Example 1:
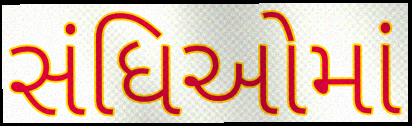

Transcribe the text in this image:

સંધિઓમાં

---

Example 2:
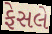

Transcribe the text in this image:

ફેસલે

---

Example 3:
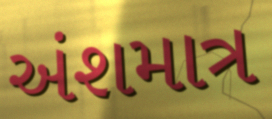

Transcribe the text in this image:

અંશમાત્ર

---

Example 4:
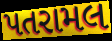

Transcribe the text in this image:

પતરામલ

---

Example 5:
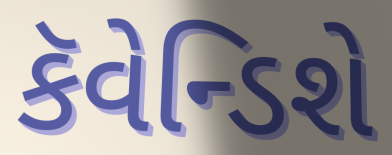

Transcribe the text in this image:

કૅવેન્ડિશે